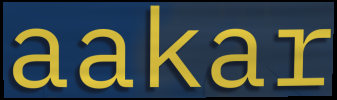
aakar